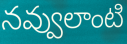
నవ్వులాంటి